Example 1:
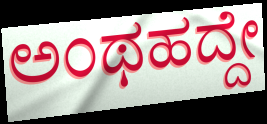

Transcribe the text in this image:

ಅಂಥಹದ್ದೇ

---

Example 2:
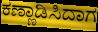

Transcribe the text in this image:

ಕಣ್ಣಾಡಿಸಿದಾಗ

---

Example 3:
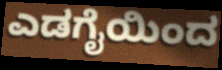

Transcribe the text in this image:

ಎಡಗೈಯಿಂದ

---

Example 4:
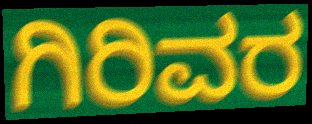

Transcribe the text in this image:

ಗಿರಿವರ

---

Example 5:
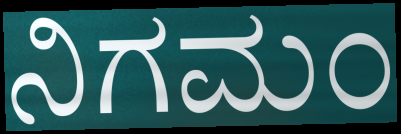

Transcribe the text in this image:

ನಿಗಮಂ